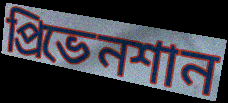
প্রিভেনশান